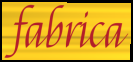
fabrica